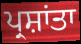
ਪ੍ਰਸ਼ਾਂਤਾ